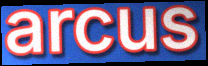
arcus